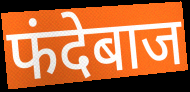
फंदेबाज